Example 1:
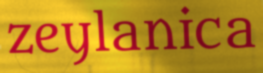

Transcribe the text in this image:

zeylanica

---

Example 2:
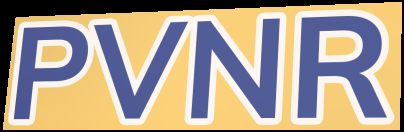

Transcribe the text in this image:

PVNR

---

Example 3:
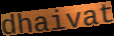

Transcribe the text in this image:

dhaivat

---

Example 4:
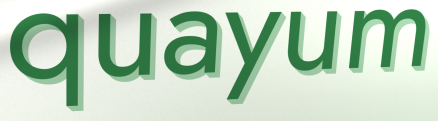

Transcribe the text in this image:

quayum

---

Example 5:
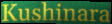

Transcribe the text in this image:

Kushinara